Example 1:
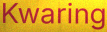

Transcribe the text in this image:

Kwaring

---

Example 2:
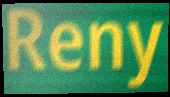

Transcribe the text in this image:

Reny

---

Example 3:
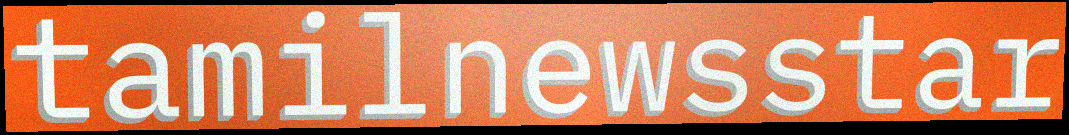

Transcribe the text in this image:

tamilnewsstar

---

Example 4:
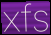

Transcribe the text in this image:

xfs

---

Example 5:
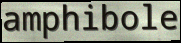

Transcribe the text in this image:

amphibole